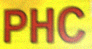
PHC